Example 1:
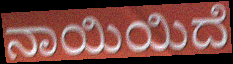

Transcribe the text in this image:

ನಾಯಿಯಿದೆ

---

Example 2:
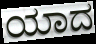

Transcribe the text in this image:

ಯಾದ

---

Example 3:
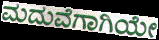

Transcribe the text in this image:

ಮದುವೆಗಾಗಿಯೇ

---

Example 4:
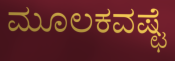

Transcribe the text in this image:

ಮೂಲಕವಷ್ಟೆ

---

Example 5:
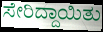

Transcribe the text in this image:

ಸೇರಿದ್ದಾಯಿತು